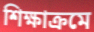
শিক্ষাক্রমে